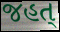
જહત્